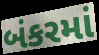
બંકરમાં